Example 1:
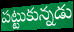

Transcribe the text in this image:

పట్టుకున్నడు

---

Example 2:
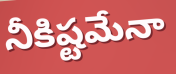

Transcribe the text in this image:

నీకిష్టమేనా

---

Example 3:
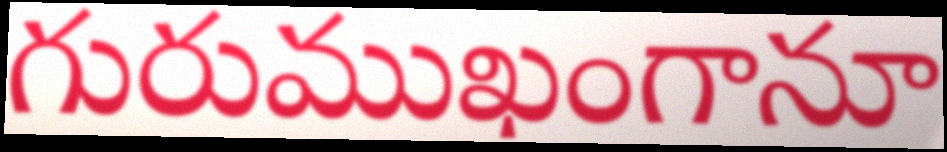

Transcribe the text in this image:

గురుముఖంగానూ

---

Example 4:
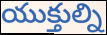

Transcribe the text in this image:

యుక్తుల్ని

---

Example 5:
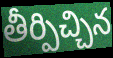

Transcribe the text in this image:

తీర్పిచ్చిన